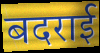
बदराई